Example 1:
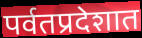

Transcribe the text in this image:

पर्वतप्रदेशात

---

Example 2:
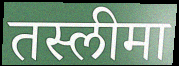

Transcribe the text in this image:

तस्लीमा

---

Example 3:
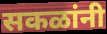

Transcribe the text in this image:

सकळांनी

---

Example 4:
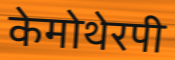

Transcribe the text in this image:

केमोथेरपी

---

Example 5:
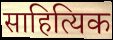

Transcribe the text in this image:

साहित्यिक